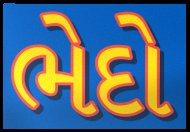
ભેદો